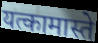
यत्कामास्ते